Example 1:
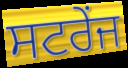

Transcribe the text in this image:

ਸਟਰੇਂਜ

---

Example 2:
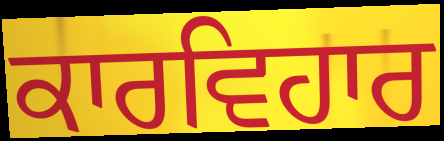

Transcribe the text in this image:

ਕਾਰਵਿਹਾਰ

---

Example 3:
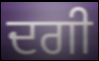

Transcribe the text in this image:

ਦਗੀ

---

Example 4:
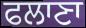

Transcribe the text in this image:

ਫਲਾਣਾ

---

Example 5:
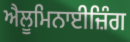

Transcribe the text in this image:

ਐਲੂਮਿਨਾਈਜ਼ਿੰਗ